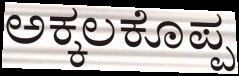
ಅಕ್ಕಲಕೊಪ್ಪ